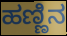
ಹಣ್ಣಿನ